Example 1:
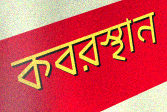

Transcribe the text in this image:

কবরস্থান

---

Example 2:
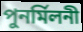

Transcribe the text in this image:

পুনর্মিলনী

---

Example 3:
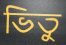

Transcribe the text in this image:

ভিতু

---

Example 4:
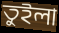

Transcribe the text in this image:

তুইলা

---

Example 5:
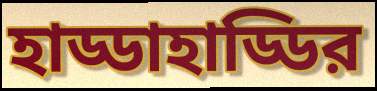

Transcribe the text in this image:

হাড্ডাহাড্ডির